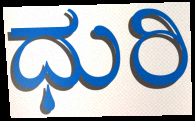
ಧುರಿ